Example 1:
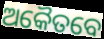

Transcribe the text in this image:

ଅକୈତବେ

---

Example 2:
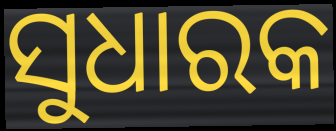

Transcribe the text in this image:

ସୁଧାରକ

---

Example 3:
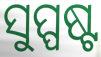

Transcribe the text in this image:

ସୁପ୍ପଷ୍ଟ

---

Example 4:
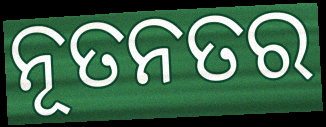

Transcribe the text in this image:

ନୂତନତର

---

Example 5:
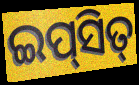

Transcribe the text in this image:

ଇପ୍‌ସିତ୍